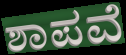
ಶಾಪವೆ